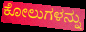
ಕೋಲುಗಳನ್ನು